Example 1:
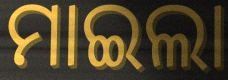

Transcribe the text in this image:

ମାଇଲା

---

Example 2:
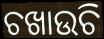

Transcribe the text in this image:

ଚଖାଉଚି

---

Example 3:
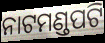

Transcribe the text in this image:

ନାଟମଣ୍ଡପଟି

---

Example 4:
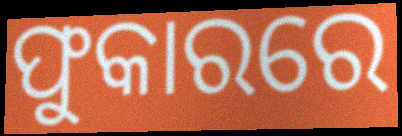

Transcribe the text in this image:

ଫୁକାରରେ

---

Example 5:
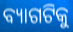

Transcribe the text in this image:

ବ୍ୟାଗଟିକୁ